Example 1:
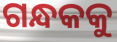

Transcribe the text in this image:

ଗନ୍ଧକକୁ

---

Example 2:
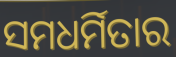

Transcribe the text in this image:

ସମଧର୍ମିତାର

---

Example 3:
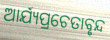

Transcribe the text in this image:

ଆର୍ଯ୍ୟପ୍ରଚେତାବୃନ୍ଦ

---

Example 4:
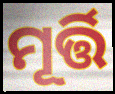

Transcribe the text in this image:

ମୂର୍ତ୍ତି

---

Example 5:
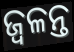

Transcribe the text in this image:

ଜ୍ବଳନ୍ତ